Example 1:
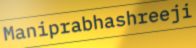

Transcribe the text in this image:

Maniprabhashreeji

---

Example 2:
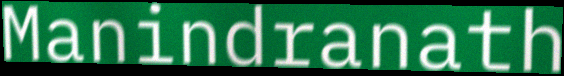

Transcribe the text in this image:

Manindranath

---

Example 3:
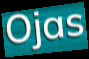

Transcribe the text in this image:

Ojas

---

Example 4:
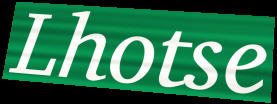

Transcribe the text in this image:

Lhotse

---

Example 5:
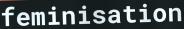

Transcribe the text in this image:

feminisation